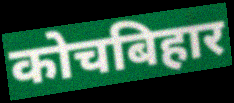
कोचबिहार